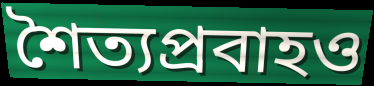
শৈত্যপ্রবাহও